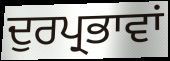
ਦੁਰਪ੍ਰਭਾਵਾਂ